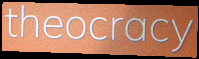
theocracy